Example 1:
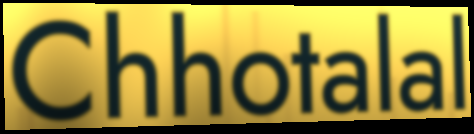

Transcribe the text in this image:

Chhotalal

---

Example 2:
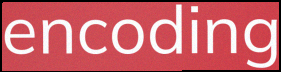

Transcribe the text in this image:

encoding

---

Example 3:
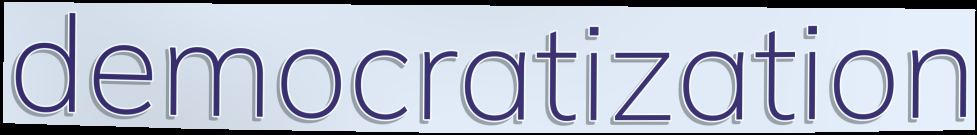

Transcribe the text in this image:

democratization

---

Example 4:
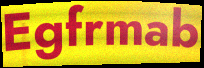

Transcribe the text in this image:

Egfrmab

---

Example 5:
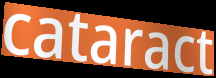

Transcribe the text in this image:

cataract